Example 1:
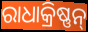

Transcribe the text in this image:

ରାଧାକ୍ରିଷ୍ଣନ୍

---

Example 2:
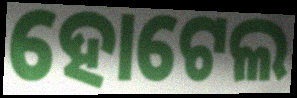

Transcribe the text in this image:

ହୋଟେଲ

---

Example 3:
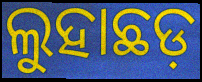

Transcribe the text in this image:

ଲୁହାଛଡ଼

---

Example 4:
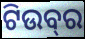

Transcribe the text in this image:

ଟିଉବ୍‍ର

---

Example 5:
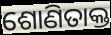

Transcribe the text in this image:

ଶୋଣିତାକ୍ତ